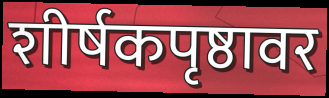
शीर्षकपृष्ठावर